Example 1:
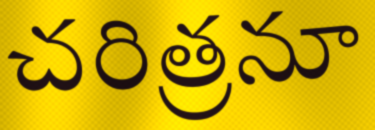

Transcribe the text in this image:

చరిత్రనూ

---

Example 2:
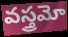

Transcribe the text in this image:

వస్త్రమో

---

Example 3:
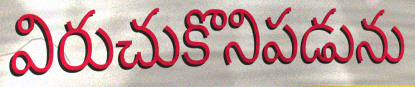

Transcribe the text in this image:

విరుచుకొనిపడును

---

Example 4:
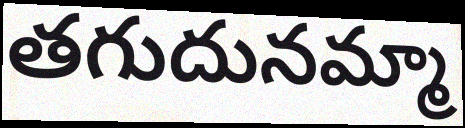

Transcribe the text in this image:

తగుదునమ్మా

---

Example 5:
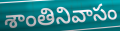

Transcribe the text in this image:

శాంతినివాసం